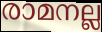
രാമനല്ല